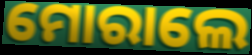
ମୋରାଲେ